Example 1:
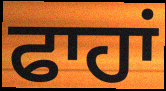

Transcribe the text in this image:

ਫਾਹਾਂ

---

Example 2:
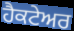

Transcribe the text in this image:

ਹੈਕਟੇਅਰ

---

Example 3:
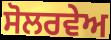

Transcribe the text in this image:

ਸੋਲਰਵੇਅ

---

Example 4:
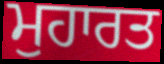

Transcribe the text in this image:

ਮੁਹਾਰਤ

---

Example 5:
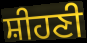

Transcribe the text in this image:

ਸ਼ੀਹਣੀ